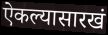
ऐकल्यासारखं